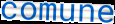
comune